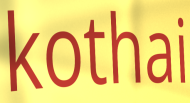
kothai